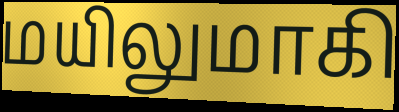
மயிலுமாகி